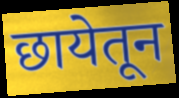
छायेतून